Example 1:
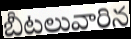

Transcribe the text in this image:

బీటలువారిన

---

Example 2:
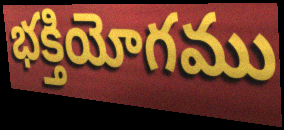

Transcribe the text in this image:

భక్తియోగము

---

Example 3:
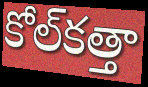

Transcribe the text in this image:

కోల్‌కత్తా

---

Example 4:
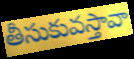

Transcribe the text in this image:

తీసుకువస్తావా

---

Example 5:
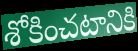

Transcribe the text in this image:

శోకించటానికి